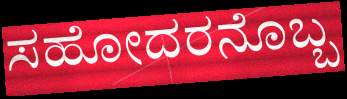
ಸಹೋದರನೊಬ್ಬ